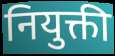
नियुक्ती